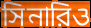
সিনারিও